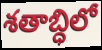
శతాబ్ధిలో